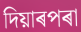
দিয়াৰপৰা